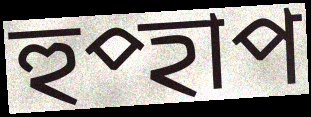
হুপ্হাপ